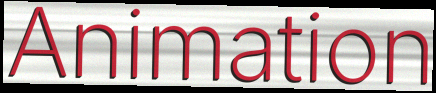
Animation